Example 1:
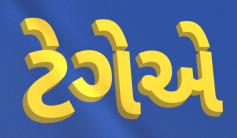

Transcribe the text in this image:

ટેગેએ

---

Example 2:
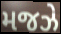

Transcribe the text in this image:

મજઝે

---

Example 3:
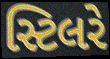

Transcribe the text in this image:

સ્ટિલરે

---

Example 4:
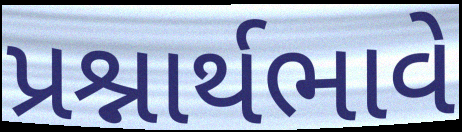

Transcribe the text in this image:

પ્રશ્નાર્થભાવે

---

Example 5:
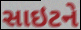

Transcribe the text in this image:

સાઇટને